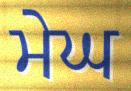
ਮੇਘ